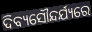
ଦିବ୍ୟସୌନ୍ଦର୍ଯ୍ୟରେ